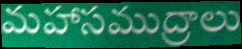
మహాసముద్రాలు